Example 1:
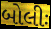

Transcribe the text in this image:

બોલીઃ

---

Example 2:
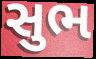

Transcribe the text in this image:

સુભ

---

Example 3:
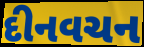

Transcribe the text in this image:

દીનવચન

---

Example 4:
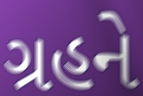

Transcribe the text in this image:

ગ્રહને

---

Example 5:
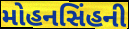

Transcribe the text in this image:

મોહનસિંહની